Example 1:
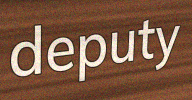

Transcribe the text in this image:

deputy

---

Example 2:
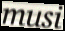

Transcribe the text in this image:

musi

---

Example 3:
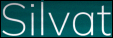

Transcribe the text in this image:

Silvat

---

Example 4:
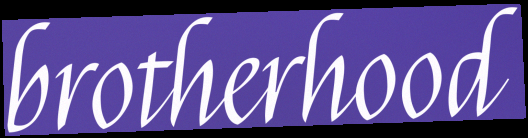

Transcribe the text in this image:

brotherhood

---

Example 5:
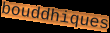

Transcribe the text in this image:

bouddhiques